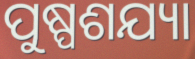
ପୁଷ୍ପଶଯ୍ୟା